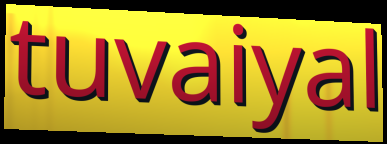
tuvaiyal